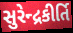
સુરેન્દ્રકીર્તિ